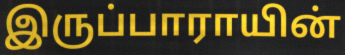
இருப்பாராயின்